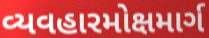
વ્યવહારમોક્ષમાર્ગ